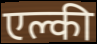
एल्की